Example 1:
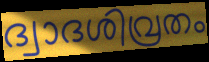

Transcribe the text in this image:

ദ്വാദശിവ്രതം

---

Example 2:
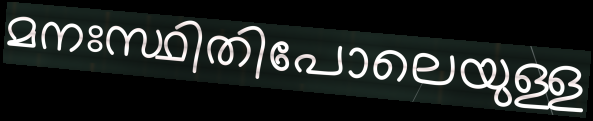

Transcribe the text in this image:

മനഃസ്ഥിതിപോലെയുള്ള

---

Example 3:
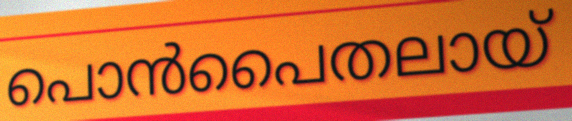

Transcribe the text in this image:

പൊൻപൈതലായ്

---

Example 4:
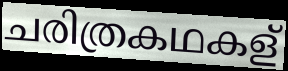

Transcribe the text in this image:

ചരിത്രകഥകള്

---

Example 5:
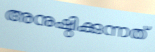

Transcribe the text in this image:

അനുഷ്ഠിക്കുന്നത്